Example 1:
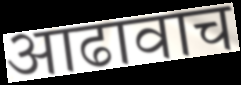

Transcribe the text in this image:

आढावाच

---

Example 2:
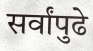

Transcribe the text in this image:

सर्वांपुढे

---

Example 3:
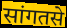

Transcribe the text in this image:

सांगतसे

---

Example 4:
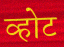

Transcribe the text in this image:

व्होट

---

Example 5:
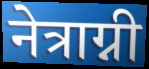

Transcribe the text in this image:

नेत्राग्नी